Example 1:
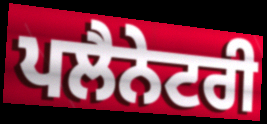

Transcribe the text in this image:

ਪਲੈਨੇਟਰੀ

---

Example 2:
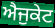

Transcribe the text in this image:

ਐਜੁਕੇਟ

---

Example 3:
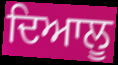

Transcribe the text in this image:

ਦਿਆਲੂ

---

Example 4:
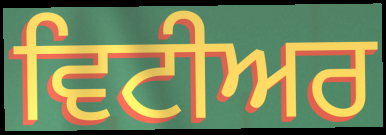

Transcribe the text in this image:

ਵਿਟੀਅਰ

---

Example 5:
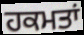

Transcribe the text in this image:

ਹਕਮਤਾਂ